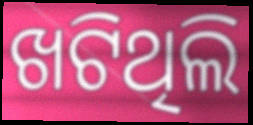
ଖଟିଥିଲି